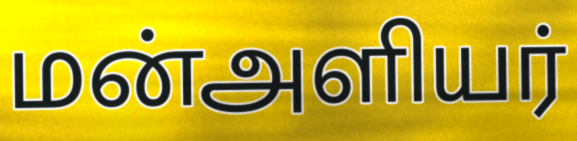
மன்அளியர்